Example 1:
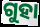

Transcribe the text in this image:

ଗୁହା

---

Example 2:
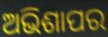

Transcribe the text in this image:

ଅଭିଶାପର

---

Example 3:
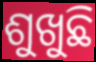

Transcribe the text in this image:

ଶୁଖୁଛି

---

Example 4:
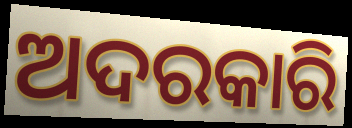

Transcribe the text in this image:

ଅଦରକାରି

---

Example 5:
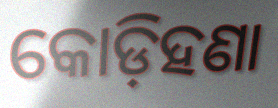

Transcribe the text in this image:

କୋଡ଼ିହଣା